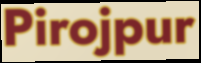
Pirojpur